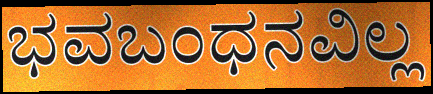
ಭವಬಂಧನವಿಲ್ಲ